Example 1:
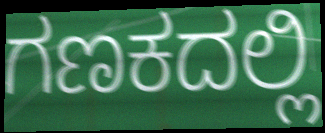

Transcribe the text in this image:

ಗಣಕದಲ್ಲಿ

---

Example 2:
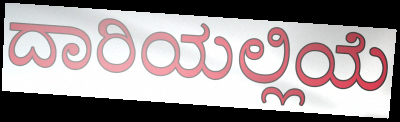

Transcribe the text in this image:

ದಾರಿಯಲ್ಲಿಯೆ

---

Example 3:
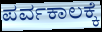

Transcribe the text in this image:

ಪರ್ವಕಾಲಕ್ಕೆ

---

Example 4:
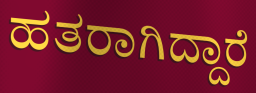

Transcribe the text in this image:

ಹತರಾಗಿದ್ದಾರೆ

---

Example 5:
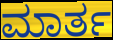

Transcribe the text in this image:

ಮಾರ್ತ